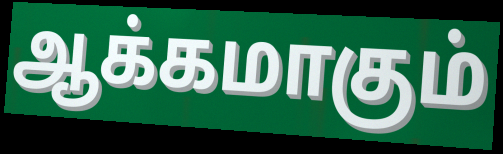
ஆக்கமாகும்